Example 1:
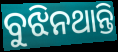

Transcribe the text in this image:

ବୁଝିନଥାନ୍ତି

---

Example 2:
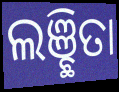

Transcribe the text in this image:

ଲଞ୍ଛିତା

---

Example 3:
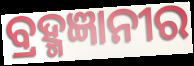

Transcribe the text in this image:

ବ୍ରହ୍ମଜ୍ଞାନୀର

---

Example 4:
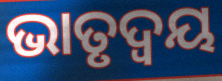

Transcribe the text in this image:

ଭାତୃଦ୍ବୟ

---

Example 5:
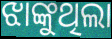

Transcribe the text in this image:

ଝାଙ୍କୁଥିଲା